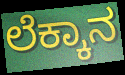
ಲೆಕ್ಕಾನ